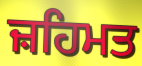
ਜ਼ਹਿਮਤ